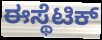
ಈಸ್ಥೆಟಿಕ್